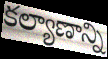
కల్యాణాన్ని